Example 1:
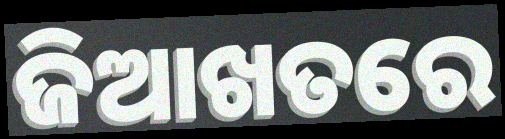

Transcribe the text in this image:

ଜିଆଖତରେ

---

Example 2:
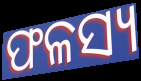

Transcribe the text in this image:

ଫଳସ୍ୟ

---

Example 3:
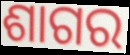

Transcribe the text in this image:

ଶାଗର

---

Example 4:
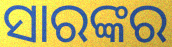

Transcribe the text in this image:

ସାରଙ୍କର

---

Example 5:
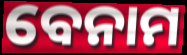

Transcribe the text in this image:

ବେନାମ